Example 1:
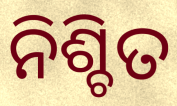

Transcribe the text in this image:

ନିଶ୍ଚିତ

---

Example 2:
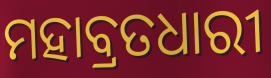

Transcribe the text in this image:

ମହାବ୍ରତଧାରୀ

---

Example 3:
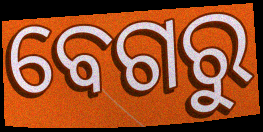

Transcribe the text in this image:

ବେଗରୁ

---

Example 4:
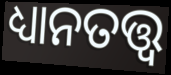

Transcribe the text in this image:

ଧ୍ୟାନତତ୍ତ୍ୱ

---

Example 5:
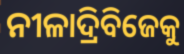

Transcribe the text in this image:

ନୀଳାଦ୍ରିବିଜେକୁ